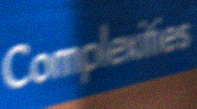
Complexities